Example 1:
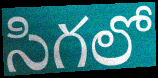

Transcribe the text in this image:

సిగలో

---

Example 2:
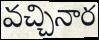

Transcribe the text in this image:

వచ్చినార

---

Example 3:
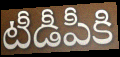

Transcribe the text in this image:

టీడీపీకి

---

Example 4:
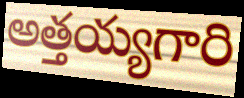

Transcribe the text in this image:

అత్తయ్యగారి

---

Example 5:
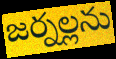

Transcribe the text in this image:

జర్నల్లను